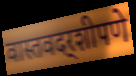
वास्तवदर्शीपणे